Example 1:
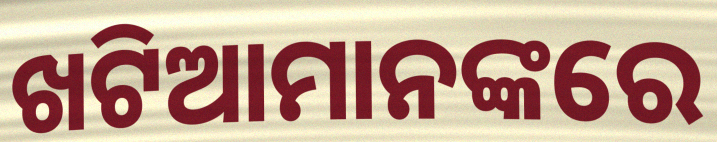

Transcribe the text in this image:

ଖଟିଆମାନଙ୍କରେ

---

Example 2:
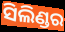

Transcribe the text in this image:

ସିଲିଣ୍ଡର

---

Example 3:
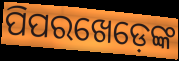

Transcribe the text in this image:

ପିପରଖେଡ଼େଙ୍କ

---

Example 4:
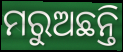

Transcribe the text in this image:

ମରୁଅଛନ୍ତି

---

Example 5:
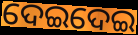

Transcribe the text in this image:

ଦେଇଦେଇ